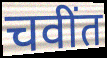
चवींत